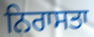
ਨਿਰਾਸਤਾ